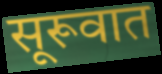
सूरूवात